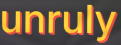
unruly